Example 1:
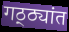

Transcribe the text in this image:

गठ्ठ्यांत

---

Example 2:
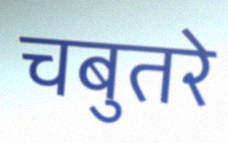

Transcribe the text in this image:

चबुतरे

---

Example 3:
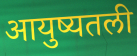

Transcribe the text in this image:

आयुष्यतली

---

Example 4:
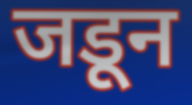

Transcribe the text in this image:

जडून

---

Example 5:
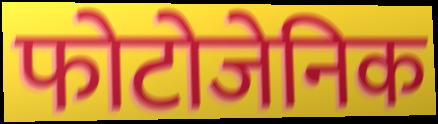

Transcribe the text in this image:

फोटोजेनिक